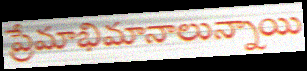
ప్రేమాభిమానాలున్నాయి